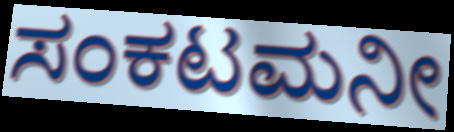
ಸಂಕಟಮನೀ